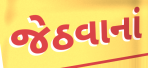
જેઠવાનાં